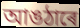
আঙঠাৰে